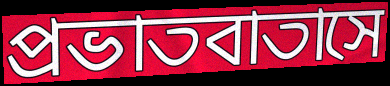
প্রভাতবাতাসে